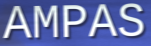
AMPAS